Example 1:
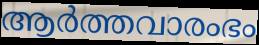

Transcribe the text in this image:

ആർത്തവാരംഭം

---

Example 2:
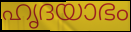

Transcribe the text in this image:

ഹൃദയാഭം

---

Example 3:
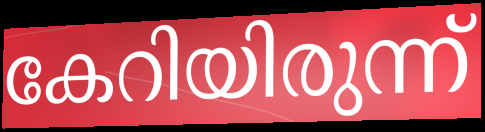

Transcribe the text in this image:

കേറിയിരുന്ന്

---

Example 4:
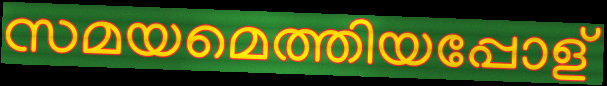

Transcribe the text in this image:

സമയമെത്തിയപ്പോള്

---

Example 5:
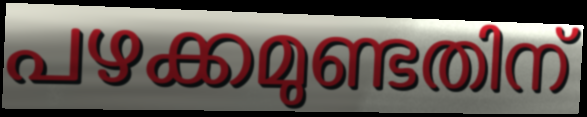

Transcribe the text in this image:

പഴക്കമുണ്ടതിന്